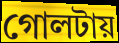
গোলটায়